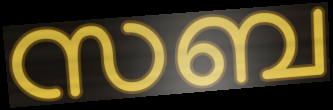
സബ